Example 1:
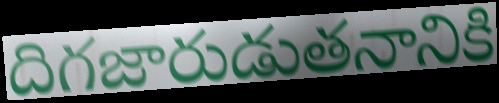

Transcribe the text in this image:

దిగజారుడుతనానికి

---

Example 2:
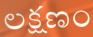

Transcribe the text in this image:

లక్షణం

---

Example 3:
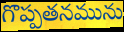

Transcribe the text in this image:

గొప్పతనమును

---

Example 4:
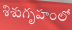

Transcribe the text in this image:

శిశుగృహంలో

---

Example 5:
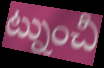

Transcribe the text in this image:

ట్నుంచీ